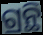
ଗ୍ରନ୍ଥି